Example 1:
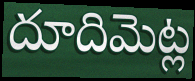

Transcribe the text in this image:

దూదిమెట్ల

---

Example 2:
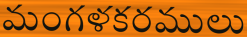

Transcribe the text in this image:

మంగళకరములు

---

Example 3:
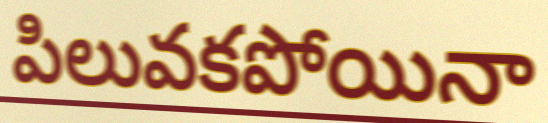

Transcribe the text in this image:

పిలువకపోయినా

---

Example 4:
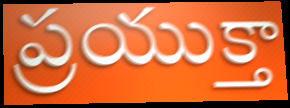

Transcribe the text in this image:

ప్రయుక్తా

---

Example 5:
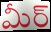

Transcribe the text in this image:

మీర్